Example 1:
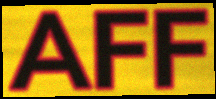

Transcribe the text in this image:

AFF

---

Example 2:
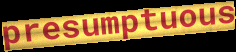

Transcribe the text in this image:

presumptuous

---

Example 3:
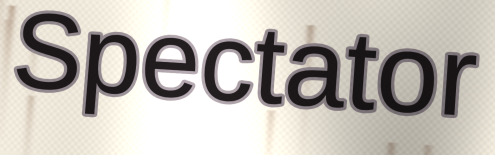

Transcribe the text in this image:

Spectator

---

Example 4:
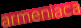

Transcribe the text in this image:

armeniaca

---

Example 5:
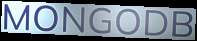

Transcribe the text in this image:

MONGODB